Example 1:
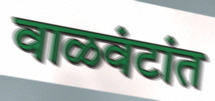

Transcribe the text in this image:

वाळवंटांत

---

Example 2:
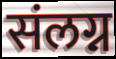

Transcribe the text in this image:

संलग्न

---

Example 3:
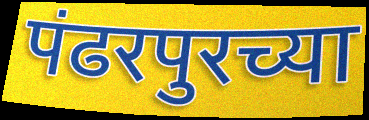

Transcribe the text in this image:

पंढरपुरच्या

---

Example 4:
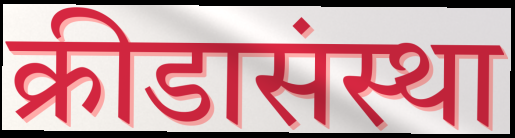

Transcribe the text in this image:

क्रीडासंस्था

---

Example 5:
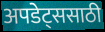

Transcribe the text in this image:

अपडेट्ससाठी